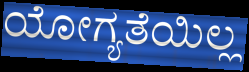
ಯೋಗ್ಯತೆಯಿಲ್ಲ